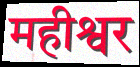
महीश्वर